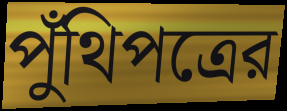
পুঁথিপত্রের